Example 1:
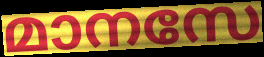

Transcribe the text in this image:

മാനസേ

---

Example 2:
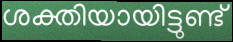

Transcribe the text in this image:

ശക്തിയായിട്ടുണ്ട്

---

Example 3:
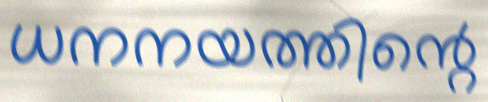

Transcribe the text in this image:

ധനനയത്തിന്റെ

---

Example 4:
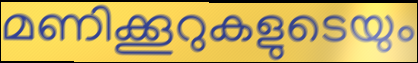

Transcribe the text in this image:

മണിക്കൂറുകളുടെയും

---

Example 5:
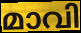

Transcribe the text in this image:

മാവി